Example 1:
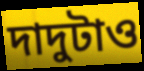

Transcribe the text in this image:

দাদুটাও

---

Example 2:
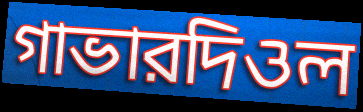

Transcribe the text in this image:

গাভারদিওল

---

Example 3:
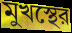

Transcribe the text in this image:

মুখস্থের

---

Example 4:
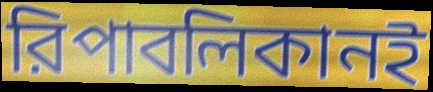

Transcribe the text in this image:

রিপাবলিকানই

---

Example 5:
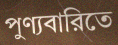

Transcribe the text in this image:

পুণ্যবারিতে